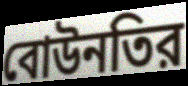
বোউনতির